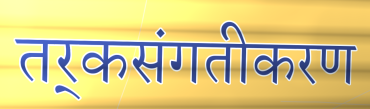
तर्कसंगतीकरण